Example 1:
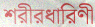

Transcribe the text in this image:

শরীরধারিণী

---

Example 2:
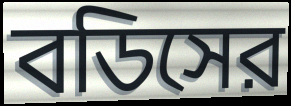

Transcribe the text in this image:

বডিসের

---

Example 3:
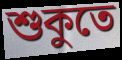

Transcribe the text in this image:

শুকুতে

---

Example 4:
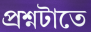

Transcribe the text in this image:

প্রশ্নটাতে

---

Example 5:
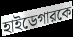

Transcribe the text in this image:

হাইডেগারকে